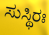
ಸುಸ್ಥಿರಃ